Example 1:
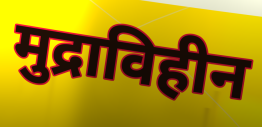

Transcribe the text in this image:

मुद्राविहीन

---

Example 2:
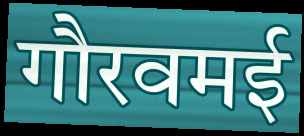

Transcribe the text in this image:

गौरवमई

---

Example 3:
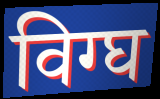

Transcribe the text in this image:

विग्घ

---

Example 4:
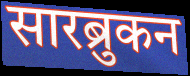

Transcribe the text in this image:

सारब्रुकन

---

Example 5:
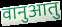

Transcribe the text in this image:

वानुआतु